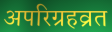
अपरिग्रहव्रत